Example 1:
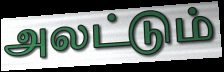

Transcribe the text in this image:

அலட்டும்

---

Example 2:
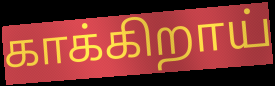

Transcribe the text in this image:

காக்கிறாய்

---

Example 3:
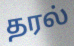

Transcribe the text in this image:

தரல்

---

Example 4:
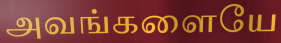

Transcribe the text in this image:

அவங்களையே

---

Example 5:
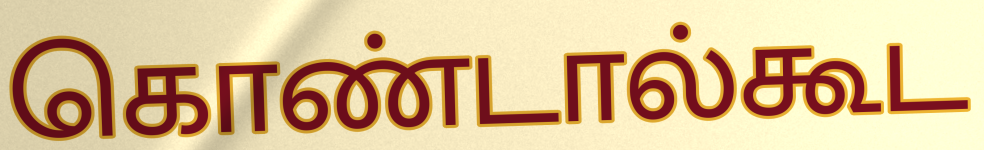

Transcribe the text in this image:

கொண்டால்கூட